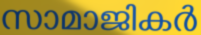
സാമാജികർ